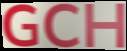
GCH